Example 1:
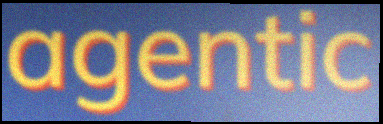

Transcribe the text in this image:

agentic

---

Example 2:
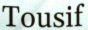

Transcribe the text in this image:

Tousif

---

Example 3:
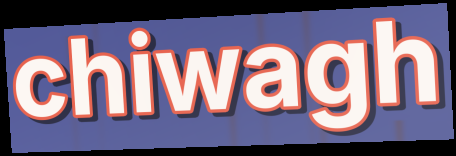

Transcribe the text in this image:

chiwagh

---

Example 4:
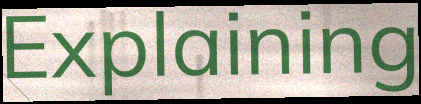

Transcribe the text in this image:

Explaining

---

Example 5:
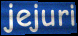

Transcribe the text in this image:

jejuri